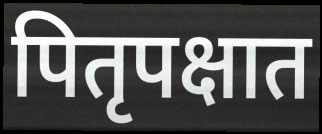
पितृपक्षात